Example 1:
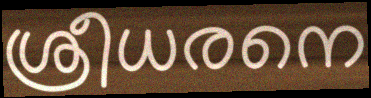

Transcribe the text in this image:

ശ്രീധരനെ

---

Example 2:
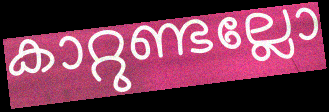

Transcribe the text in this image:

കാറ്റുണ്ടല്ലോ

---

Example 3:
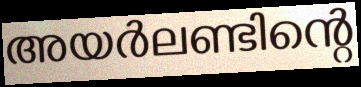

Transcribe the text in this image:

അയർലണ്ടിന്റെ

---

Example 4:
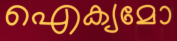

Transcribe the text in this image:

ഐക്യമോ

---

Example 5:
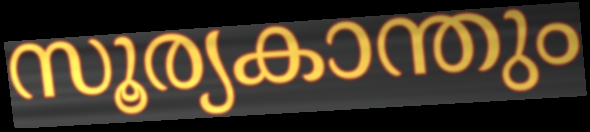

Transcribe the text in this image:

സൂര്യകാന്തും